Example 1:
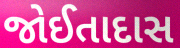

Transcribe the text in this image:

જોઈતાદાસ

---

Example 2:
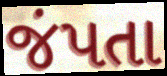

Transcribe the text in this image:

જંપતા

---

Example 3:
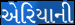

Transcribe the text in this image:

એરિયાની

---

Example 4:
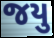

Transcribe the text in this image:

જયુ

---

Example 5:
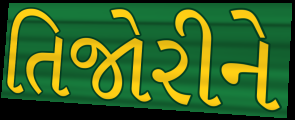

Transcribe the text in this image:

તિજોરીને